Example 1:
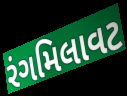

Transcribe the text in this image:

રંગમિલાવટ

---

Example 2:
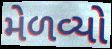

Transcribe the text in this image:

મેળવ્યો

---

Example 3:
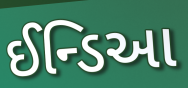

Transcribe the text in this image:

ઈન્ડિઆ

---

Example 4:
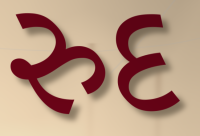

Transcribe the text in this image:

રુદ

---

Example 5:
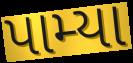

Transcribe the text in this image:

પામ્યા